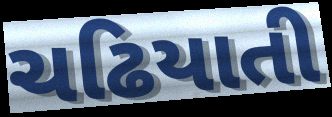
ચઢિયાતી